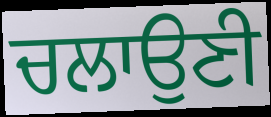
ਚਲਾਉਣੀ